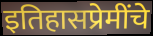
इतिहासप्रेमींचे